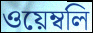
ওয়েম্বলি